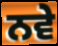
ਨਵੇ